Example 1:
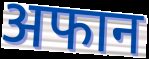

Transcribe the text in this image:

अफान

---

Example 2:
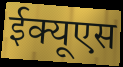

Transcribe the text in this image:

ईक्यूएस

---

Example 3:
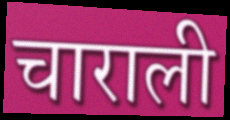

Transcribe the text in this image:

चाराली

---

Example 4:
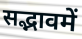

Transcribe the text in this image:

सद्भावमें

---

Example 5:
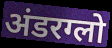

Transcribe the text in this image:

अंडरग्लो